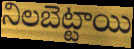
నిలబెట్టాయి